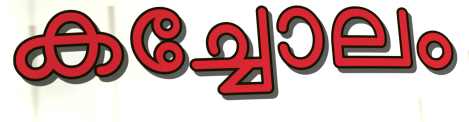
കച്ചോലം